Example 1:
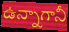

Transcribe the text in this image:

ఉన్నాగానీ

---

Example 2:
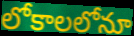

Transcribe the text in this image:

లోకాలలోనూ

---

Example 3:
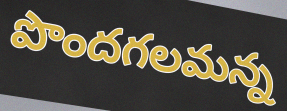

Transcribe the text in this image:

పొందగలమన్న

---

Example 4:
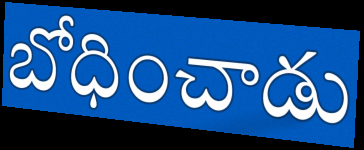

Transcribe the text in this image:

బోధించాడు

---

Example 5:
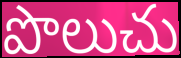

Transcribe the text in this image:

పొలుచు